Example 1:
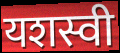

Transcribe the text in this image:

यशस्‍वी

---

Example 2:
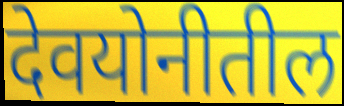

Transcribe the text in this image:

देवयोनीतील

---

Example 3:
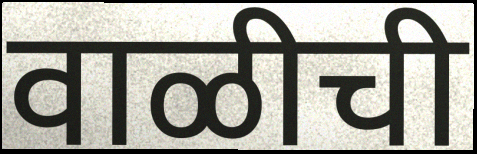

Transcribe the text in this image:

वाळीची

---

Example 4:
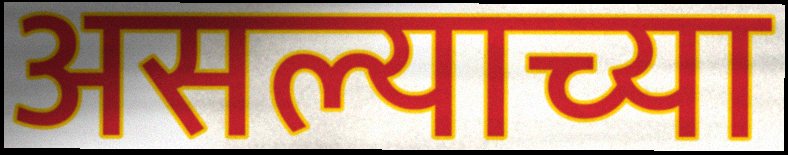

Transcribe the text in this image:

असल्याच्या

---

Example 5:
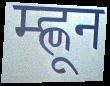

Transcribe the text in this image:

म्ह्णून